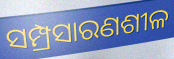
ସମ୍ପ୍ରସାରଣଶୀଳ